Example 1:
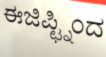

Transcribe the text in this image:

ಈಜಿಪ್ಟ್ನಿಂದ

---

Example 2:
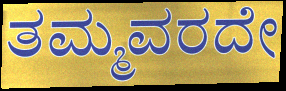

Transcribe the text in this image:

ತಮ್ಮವರದೇ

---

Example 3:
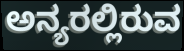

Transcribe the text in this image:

ಅನ್ಯರಲ್ಲಿರುವ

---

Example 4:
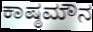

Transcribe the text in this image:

ಕಾಷ್ಠಮೌನ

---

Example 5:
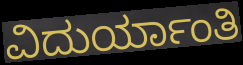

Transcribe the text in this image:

ವಿದುರ್ಯಾಂತಿ